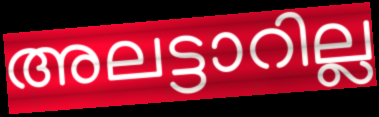
അലട്ടാറില്ല